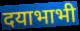
दयाभाभी